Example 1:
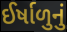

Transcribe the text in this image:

ઈર્ષાળુનું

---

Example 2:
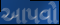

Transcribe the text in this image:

આપવો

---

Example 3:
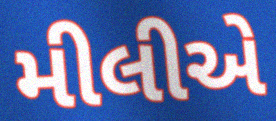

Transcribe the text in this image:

મીલીએ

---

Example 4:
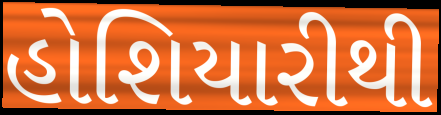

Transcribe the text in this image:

હોશિયારીથી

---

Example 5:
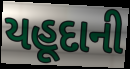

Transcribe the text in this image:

યહૂદાની